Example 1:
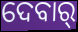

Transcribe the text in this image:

ଦେବାର୍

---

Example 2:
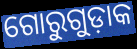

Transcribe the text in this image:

ଗୋରୁଗୁଡ଼ାକ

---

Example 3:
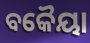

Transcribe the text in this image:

ବକୈୟା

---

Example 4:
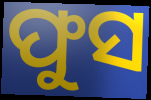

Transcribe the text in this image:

ଫୁସ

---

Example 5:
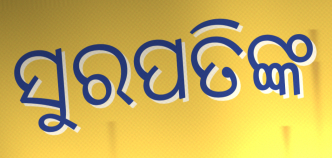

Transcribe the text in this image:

ସୁରପତିଙ୍କ